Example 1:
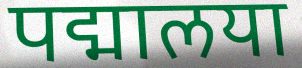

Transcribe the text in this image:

पद्मालया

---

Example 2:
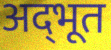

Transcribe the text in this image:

अद्‌भूत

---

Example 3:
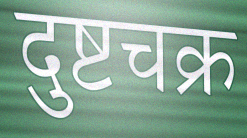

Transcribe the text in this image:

दुष्टचक्र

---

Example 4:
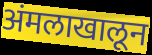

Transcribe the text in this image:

अंमलाखालून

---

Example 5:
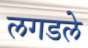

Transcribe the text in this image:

लगडले